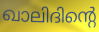
ഖാലിദിന്റെ